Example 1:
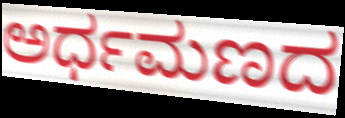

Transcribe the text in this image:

ಅರ್ಧಮಣದ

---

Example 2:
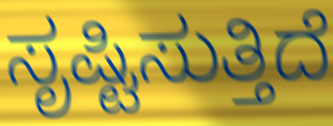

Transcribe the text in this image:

ಸೃಷ್ಟಿಸುತ್ತಿದೆ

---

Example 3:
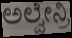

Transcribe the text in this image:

ಅಲ್ವೇನ್ರಿ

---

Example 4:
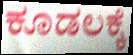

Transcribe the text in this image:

ಕೂಡಲಕ್ಕೆ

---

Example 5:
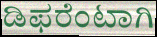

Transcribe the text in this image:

ಡಿಫರೆಂಟಾಗಿ